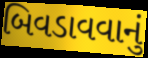
બિવડાવવાનું